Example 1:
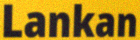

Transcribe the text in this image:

Lankan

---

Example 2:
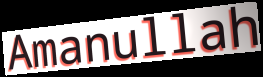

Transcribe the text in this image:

Amanullah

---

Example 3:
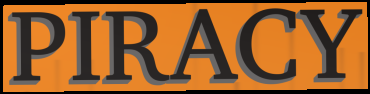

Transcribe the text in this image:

PIRACY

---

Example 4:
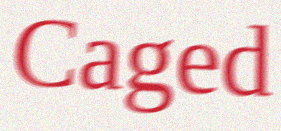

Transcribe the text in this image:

Caged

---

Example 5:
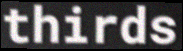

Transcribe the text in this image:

thirds